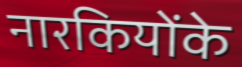
नारकियोंके